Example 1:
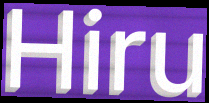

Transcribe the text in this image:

Hiru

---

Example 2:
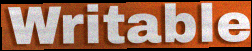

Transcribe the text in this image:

Writable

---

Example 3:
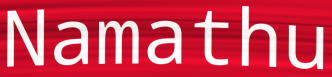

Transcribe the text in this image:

Namathu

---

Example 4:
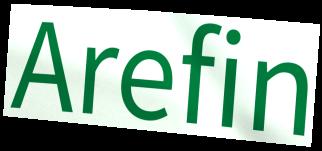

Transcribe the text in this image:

Arefin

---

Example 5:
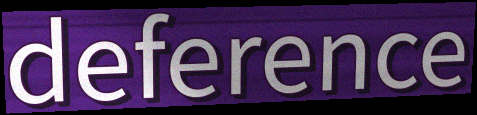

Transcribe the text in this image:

deference